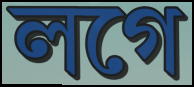
লগে